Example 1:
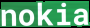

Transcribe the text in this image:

nokia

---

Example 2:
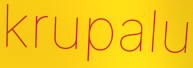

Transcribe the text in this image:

krupalu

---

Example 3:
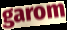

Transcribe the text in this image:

garom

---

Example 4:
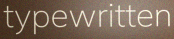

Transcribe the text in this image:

typewritten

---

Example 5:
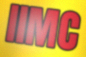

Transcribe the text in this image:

IIMC